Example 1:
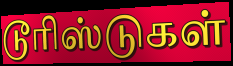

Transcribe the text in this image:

டூரிஸ்டுகள்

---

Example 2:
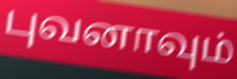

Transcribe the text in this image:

புவனாவும்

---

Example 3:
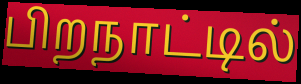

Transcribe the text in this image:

பிறநாட்டில்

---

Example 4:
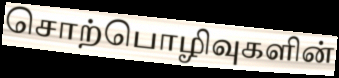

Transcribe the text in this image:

சொற்பொழிவுகளின்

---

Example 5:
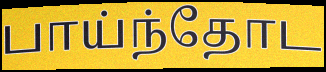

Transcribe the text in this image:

பாய்ந்தோட